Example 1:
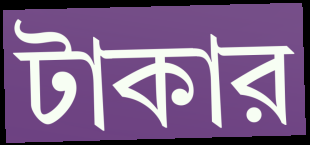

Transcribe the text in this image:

টাকার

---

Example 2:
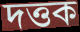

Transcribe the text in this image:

দত্তক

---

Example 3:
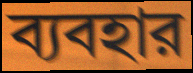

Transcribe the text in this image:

ব্যবহার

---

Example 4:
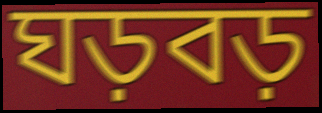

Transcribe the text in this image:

ঘড়বড়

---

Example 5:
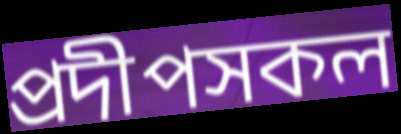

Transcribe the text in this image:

প্রদীপসকল